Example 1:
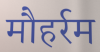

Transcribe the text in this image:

मौहर्रम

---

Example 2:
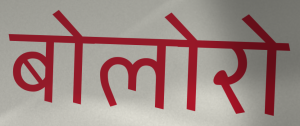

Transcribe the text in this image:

बोलोरो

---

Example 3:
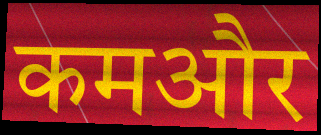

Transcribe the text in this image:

कमऔर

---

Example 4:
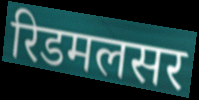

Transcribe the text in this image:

रिडमलसर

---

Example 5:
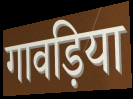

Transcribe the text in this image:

गावड़िया